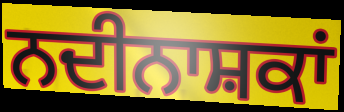
ਨਦੀਨਾਸ਼ਕਾਂ